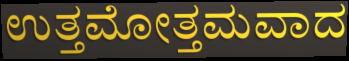
ಉತ್ತಮೋತ್ತಮವಾದ